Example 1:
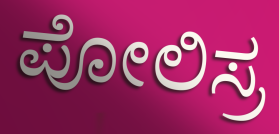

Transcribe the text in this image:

ಪೋಲಿಸ್ರ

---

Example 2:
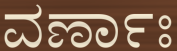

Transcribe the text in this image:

ವರ್ಣಾಃ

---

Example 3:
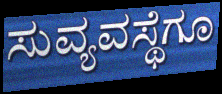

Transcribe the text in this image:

ಸುವ್ಯವಸ್ಥೆಗೂ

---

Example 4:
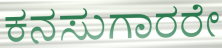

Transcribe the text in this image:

ಕನಸುಗಾರರೇ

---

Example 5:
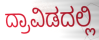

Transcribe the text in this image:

ದ್ರಾವಿಡದಲ್ಲಿ